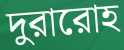
দুরারোহ